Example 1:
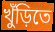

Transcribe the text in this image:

খুঁড়িতে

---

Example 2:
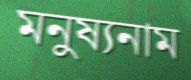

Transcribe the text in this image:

মনুষ্যনাম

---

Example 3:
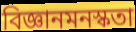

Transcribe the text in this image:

বিজ্ঞানমনস্কতা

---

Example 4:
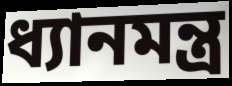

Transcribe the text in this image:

ধ্যানমন্ত্র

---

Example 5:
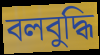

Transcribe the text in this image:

বলবুদ্ধি